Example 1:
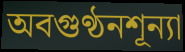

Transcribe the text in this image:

অবগুণ্ঠনশূন্যা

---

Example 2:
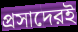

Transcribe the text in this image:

প্রসাদেরই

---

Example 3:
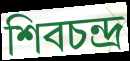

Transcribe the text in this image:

শিবচন্দ্র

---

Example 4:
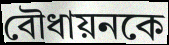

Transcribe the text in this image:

বৌধায়নকে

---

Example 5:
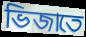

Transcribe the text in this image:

ভিজাতে